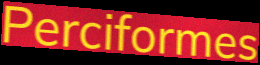
Perciformes